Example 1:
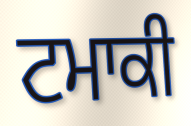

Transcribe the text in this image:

ਟਮਾਕੀ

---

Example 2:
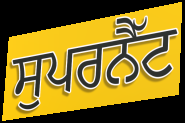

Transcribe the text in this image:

ਸੁਪਰਨੈੱਟ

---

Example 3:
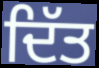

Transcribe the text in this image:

ਦਿੱਤ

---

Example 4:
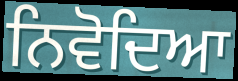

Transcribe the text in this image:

ਨਿਵੋਦਿਆ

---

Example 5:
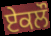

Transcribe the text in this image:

ਏਕਲੌ